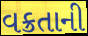
વક્રતાની